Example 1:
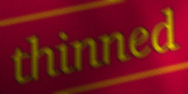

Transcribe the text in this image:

thinned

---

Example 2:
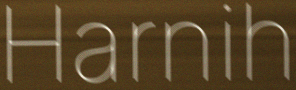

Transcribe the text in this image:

Harnih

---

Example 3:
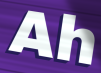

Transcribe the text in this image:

Ah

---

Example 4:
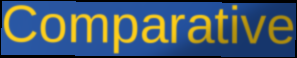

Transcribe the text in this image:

Comparative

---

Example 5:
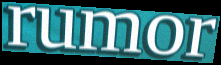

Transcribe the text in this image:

rumor